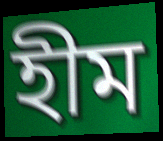
হীম